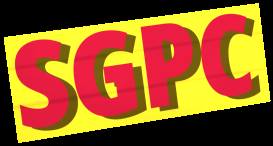
SGPC